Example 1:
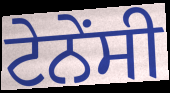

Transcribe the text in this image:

ਟੇਨੇਂਸੀ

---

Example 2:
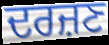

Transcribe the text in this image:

ਦਰਜ਼ਣ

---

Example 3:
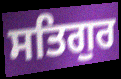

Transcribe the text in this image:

ਸਤਿਗੁਰ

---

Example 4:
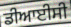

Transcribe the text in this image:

ਡੀਆਈਸੀ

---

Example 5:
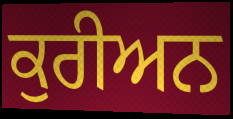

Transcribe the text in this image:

ਕੁਰੀਅਨ